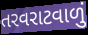
તરવરાટવાળું